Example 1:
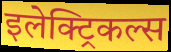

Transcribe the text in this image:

इलेक्ट्रिकल्स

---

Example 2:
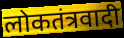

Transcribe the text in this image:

लोकतंत्रवादी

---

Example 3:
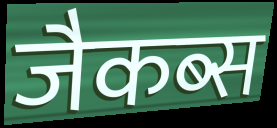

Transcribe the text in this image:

जैकब्स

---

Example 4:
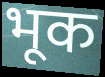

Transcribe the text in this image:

भूक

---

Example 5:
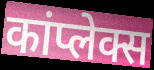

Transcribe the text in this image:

कांप्लेक्स